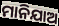
ମାନିଯାଅ